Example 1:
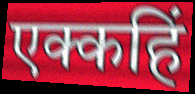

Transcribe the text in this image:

एक्कहिं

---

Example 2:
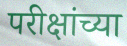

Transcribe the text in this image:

परीक्षांच्या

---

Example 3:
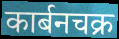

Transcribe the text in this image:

कार्बनचक्र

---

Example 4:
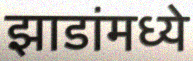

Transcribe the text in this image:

झाडांमध्ये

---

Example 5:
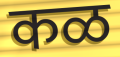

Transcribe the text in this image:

कळ